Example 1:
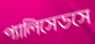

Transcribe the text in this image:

প্যালিসেডসে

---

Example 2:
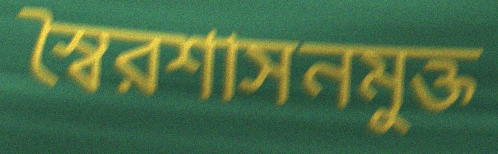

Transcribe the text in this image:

স্বৈরশাসনমুক্ত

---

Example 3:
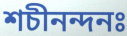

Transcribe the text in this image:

শচীনন্দনঃ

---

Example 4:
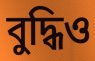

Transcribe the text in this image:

বুদ্ধিও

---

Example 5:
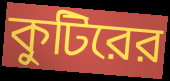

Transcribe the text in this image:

কুটিরের